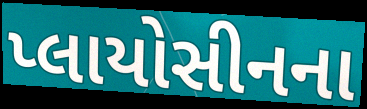
પ્લાયોસીનના